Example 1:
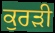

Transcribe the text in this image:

ਕੁਰੜੀ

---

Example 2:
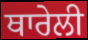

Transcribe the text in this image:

ਥਾਰੇਲੀ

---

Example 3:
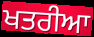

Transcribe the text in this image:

ਖਤਰੀਆ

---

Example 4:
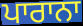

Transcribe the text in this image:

ਪਾਰਾਨਾ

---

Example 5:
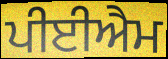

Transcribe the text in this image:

ਪੀਈਐਮ